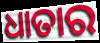
ଧାତାର